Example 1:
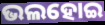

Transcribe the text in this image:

ଭଲହୋଇ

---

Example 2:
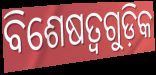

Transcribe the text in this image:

ବିଶେଷତ୍ୱଗୁଡ଼ିକ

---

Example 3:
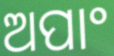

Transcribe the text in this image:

ଅପାଂ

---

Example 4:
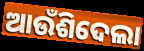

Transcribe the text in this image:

ଆଉଁଶିଦେଲା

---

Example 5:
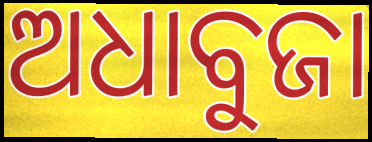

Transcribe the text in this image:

ଅଧାବୁଜା